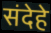
संदेहे